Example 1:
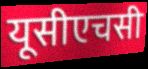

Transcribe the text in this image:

यूसीएचसी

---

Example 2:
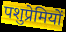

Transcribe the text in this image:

पशुप्रेमियों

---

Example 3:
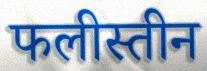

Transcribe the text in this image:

फलीस्तीन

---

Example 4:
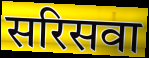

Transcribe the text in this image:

सरिसवा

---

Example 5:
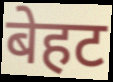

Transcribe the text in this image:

बेहट